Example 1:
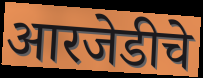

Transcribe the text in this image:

आरजेडीचे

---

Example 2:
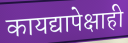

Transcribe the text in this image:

कायद्यापेक्षाही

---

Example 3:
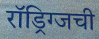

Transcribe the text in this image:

रॉड्रिग्जची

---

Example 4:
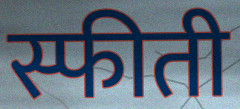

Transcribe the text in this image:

स्फीती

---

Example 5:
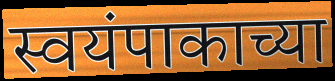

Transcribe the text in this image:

स्वयंपाकाच्या